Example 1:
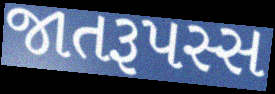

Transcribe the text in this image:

જાતરૂપસ્સ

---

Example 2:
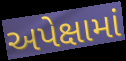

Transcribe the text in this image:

અપેક્ષામાં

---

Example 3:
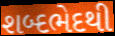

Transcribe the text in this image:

શબ્દભેદથી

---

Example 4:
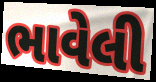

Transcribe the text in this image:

ભાવેલી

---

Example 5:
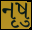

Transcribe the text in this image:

નૃષુ